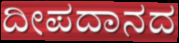
ದೀಪದಾನದ